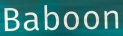
Baboon